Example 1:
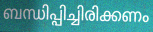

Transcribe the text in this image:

ബന്ധിപ്പിച്ചിരിക്കണം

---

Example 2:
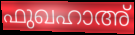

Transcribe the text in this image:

ഫുഖഹാഅ്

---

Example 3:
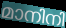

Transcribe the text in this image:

മാനിനി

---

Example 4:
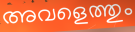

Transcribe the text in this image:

അവളെത്തും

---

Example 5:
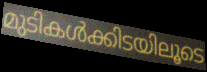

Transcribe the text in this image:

മുടികൾക്കിടയിലൂടെ